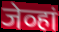
जेव्हां